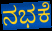
ನಭಕೆ